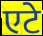
एटे